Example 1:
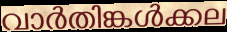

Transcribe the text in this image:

വാർതിങ്കൾക്കല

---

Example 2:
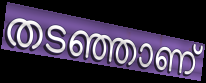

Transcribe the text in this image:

തടഞ്ഞാണ്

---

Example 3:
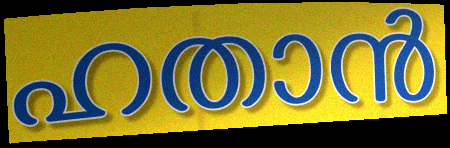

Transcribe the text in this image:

ഹതാൻ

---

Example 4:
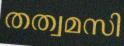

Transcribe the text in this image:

തത്വമസി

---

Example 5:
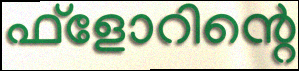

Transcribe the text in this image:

ഫ്ളോറിന്റെ